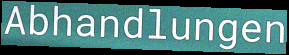
Abhandlungen